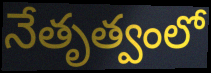
నేతృత్వంలో